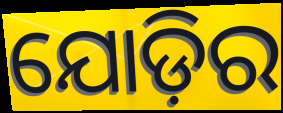
ଯୋଡ଼ିର